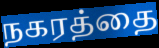
நகரத்தை